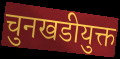
चुनखडीयुक्त